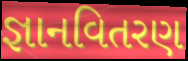
જ્ઞાનવિતરણ